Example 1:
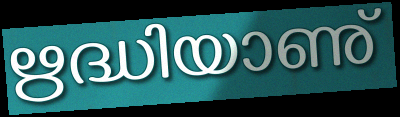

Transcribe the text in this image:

ഋദ്ധിയാണു്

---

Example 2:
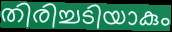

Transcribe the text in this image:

തിരിച്ചടിയാകും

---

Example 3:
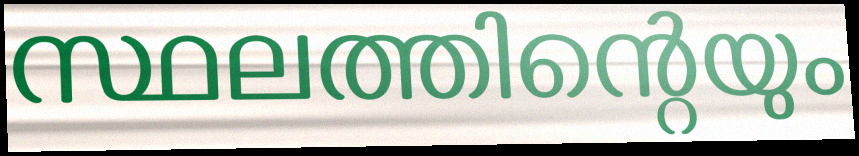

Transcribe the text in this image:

സ്ഥലത്തിന്റെയും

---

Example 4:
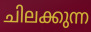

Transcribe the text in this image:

ചിലക്കുന്ന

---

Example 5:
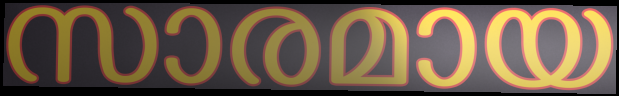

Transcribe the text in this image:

സാരമായ